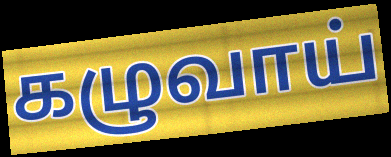
கழுவாய்